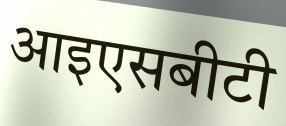
आइएसबीटी